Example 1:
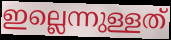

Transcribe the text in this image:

ഇല്ലെന്നുള്ളത്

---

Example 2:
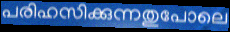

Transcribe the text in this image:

പരിഹസിക്കുന്നതുപോലെ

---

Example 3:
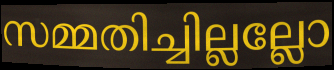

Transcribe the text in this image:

സമ്മതിച്ചില്ലല്ലോ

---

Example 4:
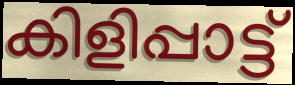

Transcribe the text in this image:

കിളിപ്പാട്ട്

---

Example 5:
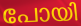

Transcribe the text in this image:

പോയി